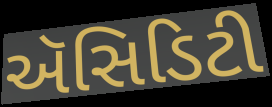
ઍસિડિટી